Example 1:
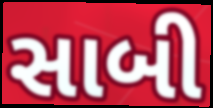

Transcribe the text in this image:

સાબી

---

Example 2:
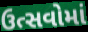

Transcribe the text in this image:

ઉત્સવોમાં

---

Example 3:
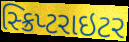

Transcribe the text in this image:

સ્ક્રિપ્ટરાઇટર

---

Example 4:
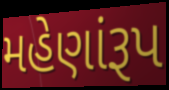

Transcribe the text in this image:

મહેણાંરૂપ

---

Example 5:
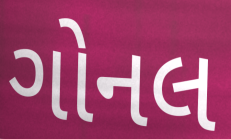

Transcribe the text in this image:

ગોનલ